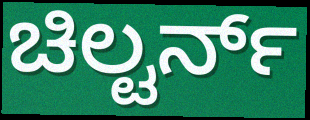
ಚಿಲ್ಟರ್ನ್